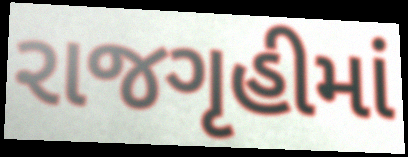
રાજગૃહીમાં